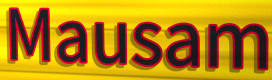
Mausam